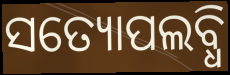
ସତ୍ୟୋପଲବ୍ଧି